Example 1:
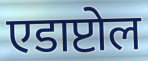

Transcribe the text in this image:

एडाप्टोल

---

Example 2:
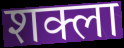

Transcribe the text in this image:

शक्ला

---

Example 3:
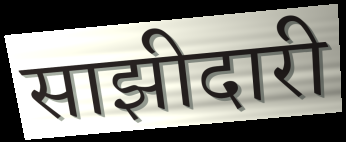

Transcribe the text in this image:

साझीदारी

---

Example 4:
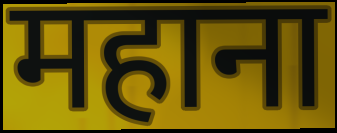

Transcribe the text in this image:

महाना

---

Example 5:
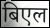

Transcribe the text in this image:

बिएल